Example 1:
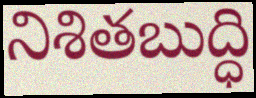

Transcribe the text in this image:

నిశితబుద్ధి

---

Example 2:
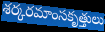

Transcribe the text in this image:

శర్కరమాంసకృత్తులు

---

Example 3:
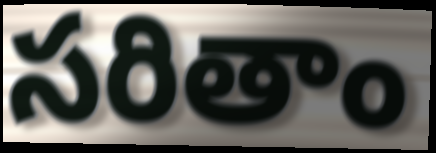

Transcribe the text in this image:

సరితాం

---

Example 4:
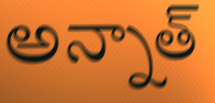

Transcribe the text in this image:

అన్నాత్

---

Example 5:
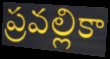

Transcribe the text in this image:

ప్రవల్లికా